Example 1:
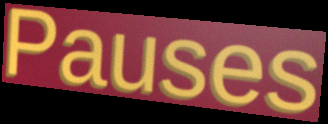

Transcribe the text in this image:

Pauses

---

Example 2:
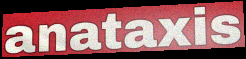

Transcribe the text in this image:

anataxis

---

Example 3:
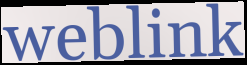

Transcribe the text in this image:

weblink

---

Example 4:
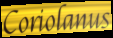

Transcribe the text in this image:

Coriolanus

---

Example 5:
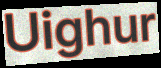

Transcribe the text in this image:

Uighur